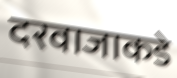
दरवाजाकडे